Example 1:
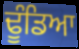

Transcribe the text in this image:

ਢੂੰਡਿਆ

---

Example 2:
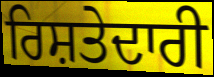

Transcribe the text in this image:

ਰਿਸ਼ਤੇਦਾਰੀ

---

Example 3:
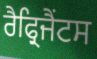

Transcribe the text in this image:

ਰੈਫ੍ਰਿਜੈਂਟਸ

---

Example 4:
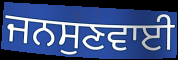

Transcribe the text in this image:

ਜਨਸੁਣਵਾਈ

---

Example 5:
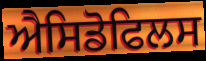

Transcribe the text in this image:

ਐਸਿਡੋਫਿਲਸ